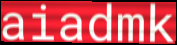
aiadmk